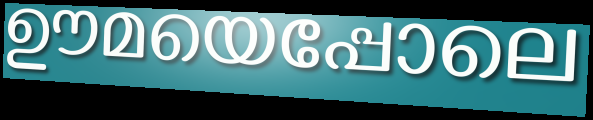
ഊമയെപ്പോലെ